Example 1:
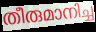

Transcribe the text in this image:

തീരുമാനിച്ച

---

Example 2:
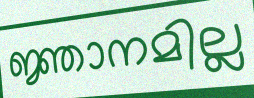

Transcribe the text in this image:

ജ്ഞാനമില്ല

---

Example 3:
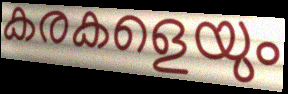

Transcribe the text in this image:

കരകളെയും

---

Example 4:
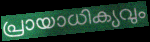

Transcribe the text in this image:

പ്രായാധിക്യവും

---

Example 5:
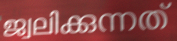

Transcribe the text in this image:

ജ്വലിക്കുന്നത്